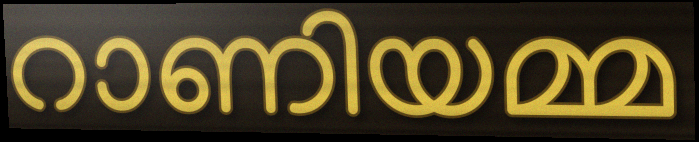
റാണിയമ്മ